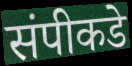
संपीकडे